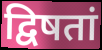
द्विषतां